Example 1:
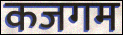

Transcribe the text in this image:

कजगम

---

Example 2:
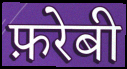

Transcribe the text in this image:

फ़रेबी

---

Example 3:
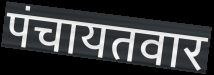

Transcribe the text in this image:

पंचायतवार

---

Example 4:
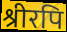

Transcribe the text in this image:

श्रीरपि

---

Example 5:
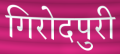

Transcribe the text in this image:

गिरोदपुरी